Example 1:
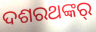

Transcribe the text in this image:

ଦଶରଥଙ୍କର୍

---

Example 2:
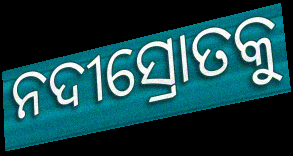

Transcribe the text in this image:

ନଦୀସ୍ରୋତକୁ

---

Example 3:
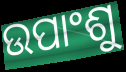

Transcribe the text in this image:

ଉପାଂଶୁ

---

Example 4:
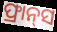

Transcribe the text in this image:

ଫ୍ରାନ୍‍ସ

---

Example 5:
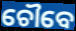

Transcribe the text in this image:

ଚୌବେ